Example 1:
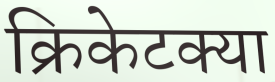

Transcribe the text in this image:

क्रिकेटक्या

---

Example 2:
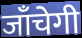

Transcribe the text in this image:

जाँचेगी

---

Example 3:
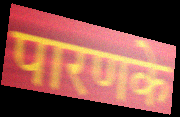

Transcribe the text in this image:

पारणके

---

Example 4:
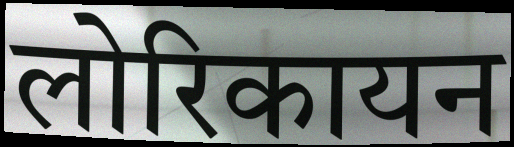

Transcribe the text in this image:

लोरिकायन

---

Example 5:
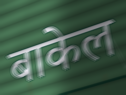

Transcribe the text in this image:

बाकेल